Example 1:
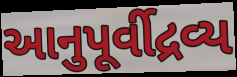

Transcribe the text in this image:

આનુપૂર્વીદ્રવ્ય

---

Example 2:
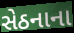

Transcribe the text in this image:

સેઠનાના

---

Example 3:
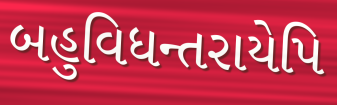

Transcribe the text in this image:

બહુવિધન્તરાયેપિ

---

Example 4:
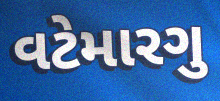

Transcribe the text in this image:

વટેમારગુ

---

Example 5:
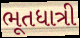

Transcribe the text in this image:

ભૂતધાત્રી